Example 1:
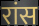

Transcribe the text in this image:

रांस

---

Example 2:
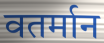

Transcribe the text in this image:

वतर्मान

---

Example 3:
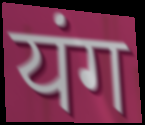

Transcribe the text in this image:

यंग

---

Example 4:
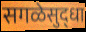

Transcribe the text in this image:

सगळेसुद्धा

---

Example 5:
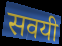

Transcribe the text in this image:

सवयी